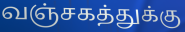
வஞ்சகத்துக்கு